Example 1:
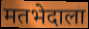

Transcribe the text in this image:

मतभेदाला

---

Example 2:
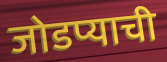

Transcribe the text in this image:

जोडप्याची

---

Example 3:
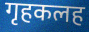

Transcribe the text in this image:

गृहकलह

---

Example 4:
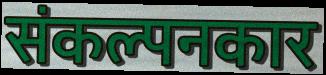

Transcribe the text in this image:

संकल्पनकार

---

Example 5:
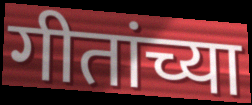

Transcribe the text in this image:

गीतांच्या